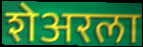
शेअरला